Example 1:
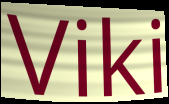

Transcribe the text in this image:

Viki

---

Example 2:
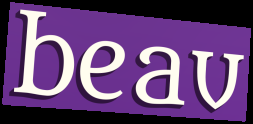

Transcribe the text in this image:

beau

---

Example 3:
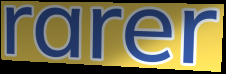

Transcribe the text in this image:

rarer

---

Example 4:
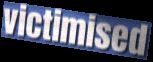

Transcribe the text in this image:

victimised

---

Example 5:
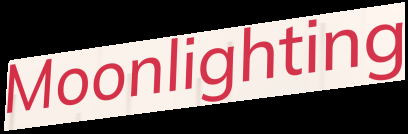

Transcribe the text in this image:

Moonlighting